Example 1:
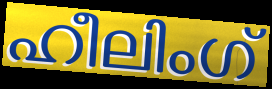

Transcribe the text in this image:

ഹീലിംഗ്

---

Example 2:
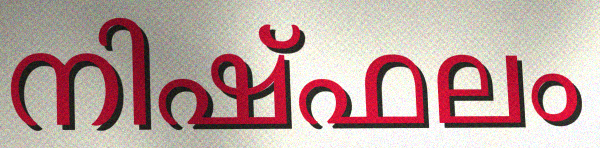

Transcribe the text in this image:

നിഷ്ഫലം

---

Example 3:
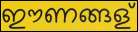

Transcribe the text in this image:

ഈണങ്ങള്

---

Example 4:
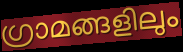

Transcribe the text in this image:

ഗ്രാമങ്ങളിലും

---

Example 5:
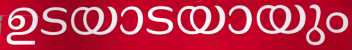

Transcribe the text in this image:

ഉടയാടയായും